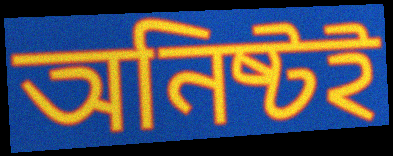
অনিষ্টই